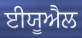
ਈਯੂਐਲ